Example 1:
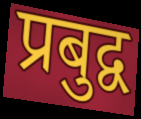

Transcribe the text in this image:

प्रबुद्व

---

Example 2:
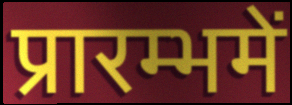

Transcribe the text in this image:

प्रारम्भमें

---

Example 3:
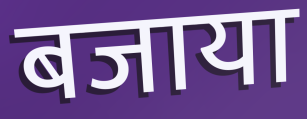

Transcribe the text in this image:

बजाया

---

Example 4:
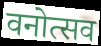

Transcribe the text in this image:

वनोत्सव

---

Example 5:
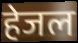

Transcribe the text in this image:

हेजल